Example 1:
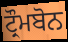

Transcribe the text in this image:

ਟ੍ਰੌਮਬੋਨ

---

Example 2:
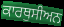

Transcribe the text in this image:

ਕਾਰਥੁਸੀਅਨ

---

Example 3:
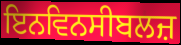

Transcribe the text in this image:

ਇਨਵਿਨਸੀਬਲਜ਼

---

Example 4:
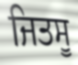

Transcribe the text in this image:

ਜਿਤਸੂ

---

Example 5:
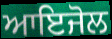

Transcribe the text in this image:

ਆਇਜੋਲ